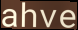
ahve